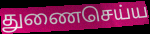
துணைசெய்ய